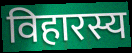
विहारस्य